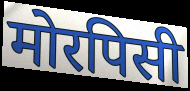
मोरपिसी